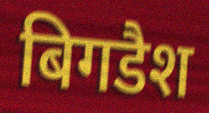
बिगडैश